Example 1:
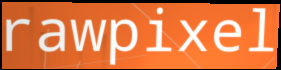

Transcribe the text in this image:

rawpixel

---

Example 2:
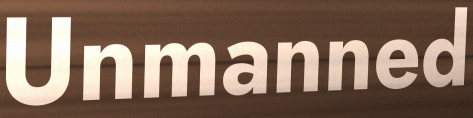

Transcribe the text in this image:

Unmanned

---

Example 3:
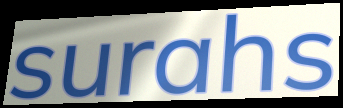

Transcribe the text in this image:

surahs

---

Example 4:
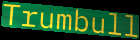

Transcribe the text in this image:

Trumbull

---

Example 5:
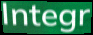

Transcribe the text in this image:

Integr